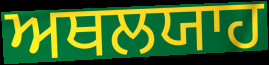
ਅਥਲਯਾਹ